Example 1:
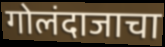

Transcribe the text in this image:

गोलंदाजाचा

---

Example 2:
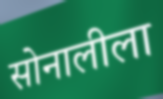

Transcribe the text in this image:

सोनालीला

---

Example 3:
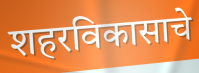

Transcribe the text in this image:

शहरविकासाचे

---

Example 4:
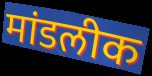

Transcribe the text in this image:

मांडलीक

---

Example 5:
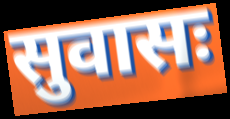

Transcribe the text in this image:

सुवासः